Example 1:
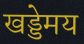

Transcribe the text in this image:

खड्डेमय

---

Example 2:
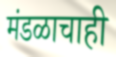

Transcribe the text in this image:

मंडळाचाही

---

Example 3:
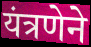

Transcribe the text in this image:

यंत्रणेने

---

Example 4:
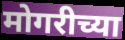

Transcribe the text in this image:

मोगरीच्या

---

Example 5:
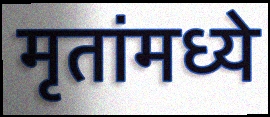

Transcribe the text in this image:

मृतांमध्ये